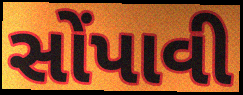
સોંપાવી